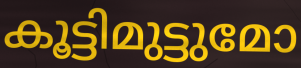
കൂട്ടിമുട്ടുമോ